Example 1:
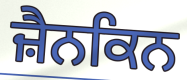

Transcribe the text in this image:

ਜ਼ੈਨਕਿਨ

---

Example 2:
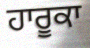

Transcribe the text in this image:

ਹਾਰੂਕਾ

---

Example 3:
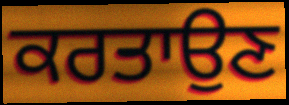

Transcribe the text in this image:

ਕਰਤਾਉਣ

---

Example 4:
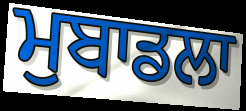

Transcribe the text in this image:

ਮੁਬਾਡਲਾ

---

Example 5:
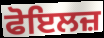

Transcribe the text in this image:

ਫੋਇਲਜ਼